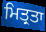
ਮਿਤ੍ਰਤਾ